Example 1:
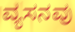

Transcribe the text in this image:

ವ್ಯಸನವು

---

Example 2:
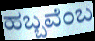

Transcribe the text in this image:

ಹಬ್ಬವೆಂಬ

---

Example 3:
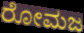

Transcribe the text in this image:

ರೋಮಜ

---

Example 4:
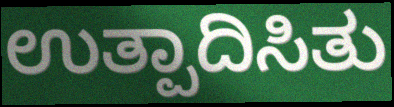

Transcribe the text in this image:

ಉತ್ಪಾದಿಸಿತು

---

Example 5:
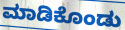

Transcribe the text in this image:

ಮಾಡಿಕೊಂಡು